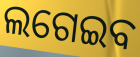
ଲଗେଇବ